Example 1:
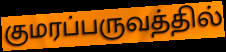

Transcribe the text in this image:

குமரப்பருவத்தில்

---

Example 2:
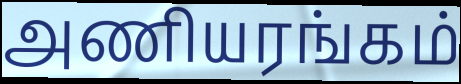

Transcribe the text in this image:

அணியரங்கம்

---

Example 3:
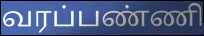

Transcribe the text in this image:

வரப்பண்ணி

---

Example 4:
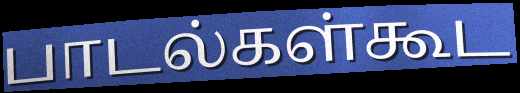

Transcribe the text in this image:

பாடல்கள்கூட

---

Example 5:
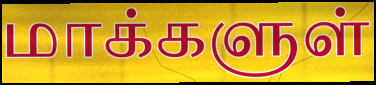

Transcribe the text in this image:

மாக்களுள்